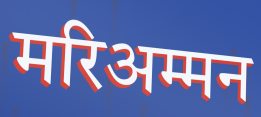
मरिअम्मन